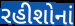
રહીશોનાં